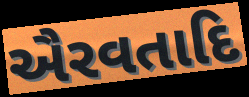
ઐરવતાદિ